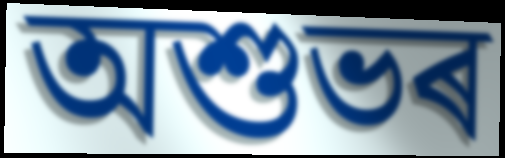
অশুভৰ